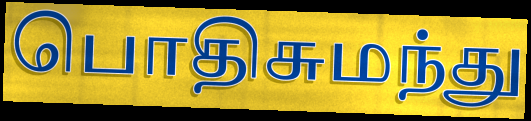
பொதிசுமந்து